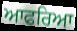
ਆਫਰਿਆ